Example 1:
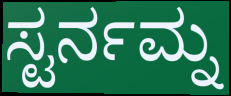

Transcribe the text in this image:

ಸ್ಟರ್ನಮ್ನ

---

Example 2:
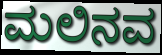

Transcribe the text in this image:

ಮಲಿನವ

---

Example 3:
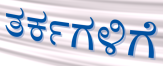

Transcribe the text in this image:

ತರ್ಕಗಳಿಗೆ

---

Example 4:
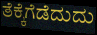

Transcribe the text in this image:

ತೆಕ್ಕೆಗೆಡೆದುದು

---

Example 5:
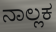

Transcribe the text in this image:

ನಾಲ್ಲಕ